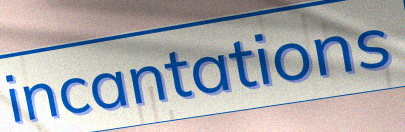
incantations